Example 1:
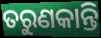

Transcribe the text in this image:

ତରୁଣକାନ୍ତି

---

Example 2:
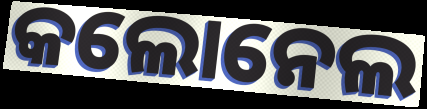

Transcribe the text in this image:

କଲୋନେଲ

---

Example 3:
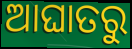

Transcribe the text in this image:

ଆଘାତରୁ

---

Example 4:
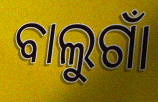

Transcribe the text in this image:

ବାଲୁଗାଁ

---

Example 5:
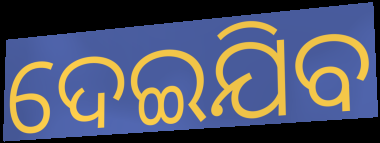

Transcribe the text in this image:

ଦେଇଯିବ